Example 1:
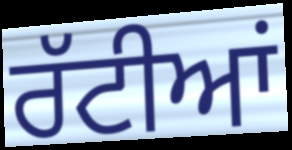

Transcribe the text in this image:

ਰੱਟੀਆਂ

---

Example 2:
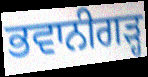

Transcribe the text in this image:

ਭਵਾਨੀਗੜ੍ਹ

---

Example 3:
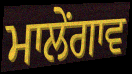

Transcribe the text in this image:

ਮਾਲੇਂਗਾਵ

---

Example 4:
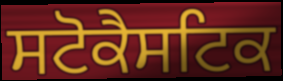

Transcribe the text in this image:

ਸਟੋਕੈਸਟਿਕ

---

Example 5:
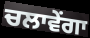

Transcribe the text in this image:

ਚਲਾਵੇਂਗਾ